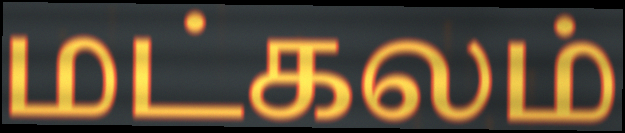
மட்கலம்